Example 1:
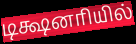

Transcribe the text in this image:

டிக்ஷனரியில்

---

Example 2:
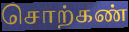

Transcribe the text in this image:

சொற்கண்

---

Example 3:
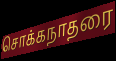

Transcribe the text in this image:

சொக்கநாதரை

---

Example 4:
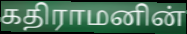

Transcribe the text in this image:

கதிராமனின்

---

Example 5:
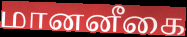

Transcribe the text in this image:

மானனீகை